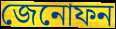
জেনোফন